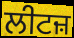
ਲੀਟਜ਼